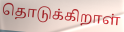
தொடுக்கிறாள்